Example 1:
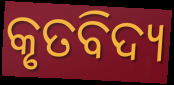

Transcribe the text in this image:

କୃତବିଦ୍ୟ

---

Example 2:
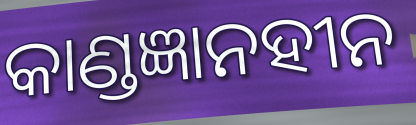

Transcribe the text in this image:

କାଣ୍ଡଜ୍ଞାନହୀନ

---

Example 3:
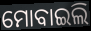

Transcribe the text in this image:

ମୋବାଇଲି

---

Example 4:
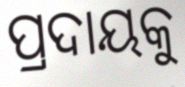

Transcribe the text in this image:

ପ୍ରଦାୟକୁ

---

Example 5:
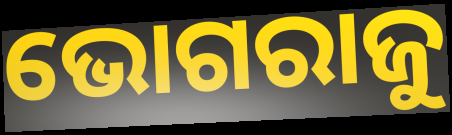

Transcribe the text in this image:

ଭୋଗରାଜୁ